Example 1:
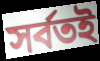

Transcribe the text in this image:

সর্বতই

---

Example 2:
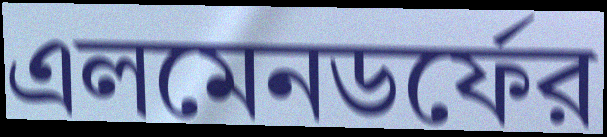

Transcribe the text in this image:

এলমেনডর্ফের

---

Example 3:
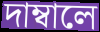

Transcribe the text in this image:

দাম্বালে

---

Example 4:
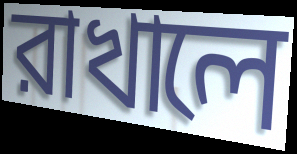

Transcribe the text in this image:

রাখালে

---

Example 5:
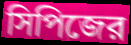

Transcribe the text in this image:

সিপিজের